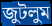
জুটলুম